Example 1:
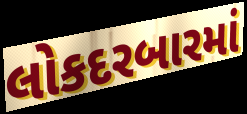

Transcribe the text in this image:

લોકદરબારમાં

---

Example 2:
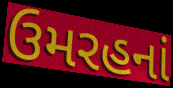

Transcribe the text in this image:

ઉમરહનાં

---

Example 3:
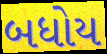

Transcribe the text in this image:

બધોય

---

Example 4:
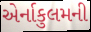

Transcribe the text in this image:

એર્નાકુલમની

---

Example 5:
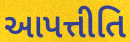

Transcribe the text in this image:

આપત્તીતિ